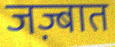
जज्ब़ात